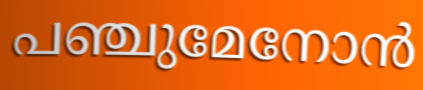
പഞ്ചുമേനോൻ